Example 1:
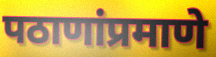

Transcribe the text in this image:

पठाणांप्रमाणे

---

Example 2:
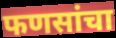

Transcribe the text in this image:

फणसांचा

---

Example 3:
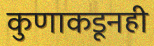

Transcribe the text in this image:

कुणाकडूनही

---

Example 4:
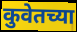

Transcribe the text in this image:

कुवेतच्या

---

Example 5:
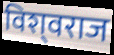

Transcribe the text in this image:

विश्वराज